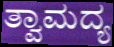
ತ್ವಾಮದ್ಯ